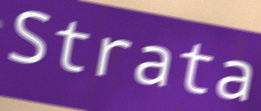
Strata